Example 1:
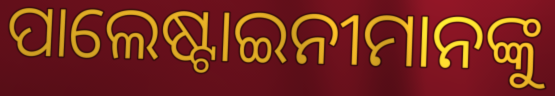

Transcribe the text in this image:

ପାଲେଷ୍ଟାଇନୀମାନଙ୍କୁ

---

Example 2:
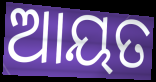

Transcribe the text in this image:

ଆୟତ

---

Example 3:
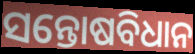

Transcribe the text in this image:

ସନ୍ତୋଷବିଧାନ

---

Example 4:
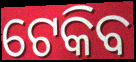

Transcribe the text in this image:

ଟେକିବ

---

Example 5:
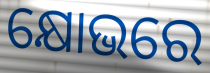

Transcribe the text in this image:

କ୍ଷୋଭରେ